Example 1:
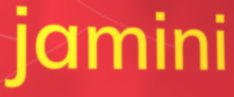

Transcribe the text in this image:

jamini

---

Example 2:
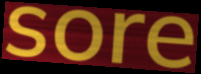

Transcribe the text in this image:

sore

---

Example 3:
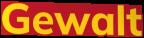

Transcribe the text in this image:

Gewalt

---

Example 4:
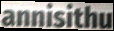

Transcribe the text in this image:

annisithu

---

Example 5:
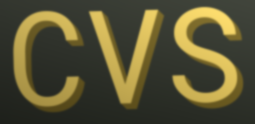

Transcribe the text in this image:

CVS